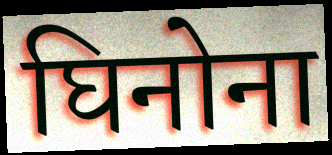
घिनोना